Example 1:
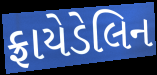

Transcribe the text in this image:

ફ્રાયેડેલિન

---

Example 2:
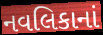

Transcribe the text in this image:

નવલિકાનાં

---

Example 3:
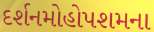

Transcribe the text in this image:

દર્શનમોહોપશમના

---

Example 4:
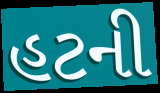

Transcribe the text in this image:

હટની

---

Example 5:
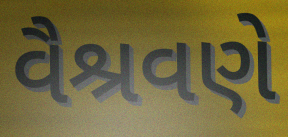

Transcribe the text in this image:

વૈશ્રવણે